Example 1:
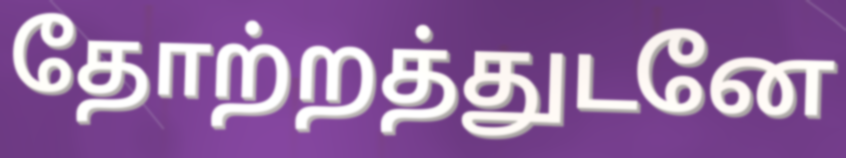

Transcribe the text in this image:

தோற்றத்துடனே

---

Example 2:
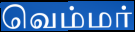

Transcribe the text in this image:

வெம்மர்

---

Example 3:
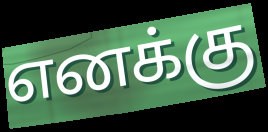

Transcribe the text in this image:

எனக்கு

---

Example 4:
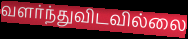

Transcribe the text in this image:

வளர்ந்துவிடவில்லை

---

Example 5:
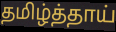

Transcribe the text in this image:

தமிழ்த்தாய்